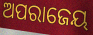
ଅପରାଜେୟ